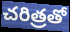
చరిత్రతో